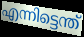
എന്നിട്ടെന്ത്